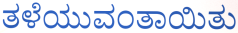
ತಳೆಯುವಂತಾಯಿತು